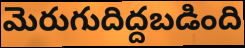
మెరుగుదిద్దబడింది